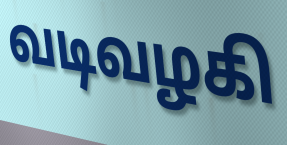
வடிவழகி